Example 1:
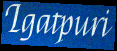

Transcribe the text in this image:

Igatpuri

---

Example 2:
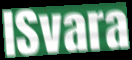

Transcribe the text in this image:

ISvara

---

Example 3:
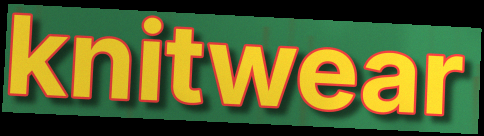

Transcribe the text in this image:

knitwear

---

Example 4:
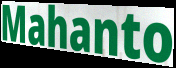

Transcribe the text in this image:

Mahanto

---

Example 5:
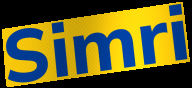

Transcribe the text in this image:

Simri